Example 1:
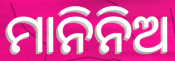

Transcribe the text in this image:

ମାନିନିଅ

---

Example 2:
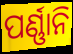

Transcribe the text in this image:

ପର୍ଣ୍ଣାନି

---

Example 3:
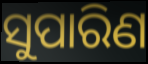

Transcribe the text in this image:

ସୁପାରିଣ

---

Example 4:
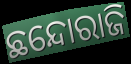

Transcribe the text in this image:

ଛନ୍ଦୋରାଜି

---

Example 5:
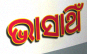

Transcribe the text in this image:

ଭାସାଥିଁ